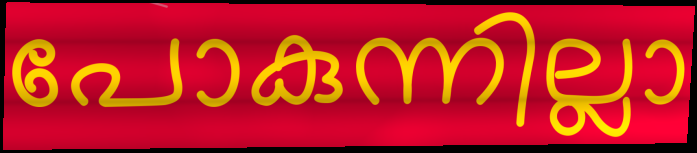
പോകുന്നില്ലാ